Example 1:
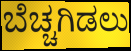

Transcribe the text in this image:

ಬೆಚ್ಚಗಿಡಲು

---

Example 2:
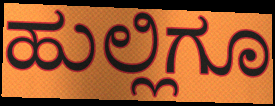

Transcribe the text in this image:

ಹುಲ್ಲಿಗೂ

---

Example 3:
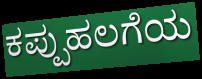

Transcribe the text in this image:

ಕಪ್ಪುಹಲಗೆಯ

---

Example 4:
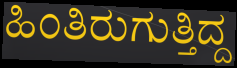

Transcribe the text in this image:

ಹಿಂತಿರುಗುತ್ತಿದ್ದ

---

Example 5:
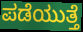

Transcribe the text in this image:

ಪಡೆಯುತ್ತೆ